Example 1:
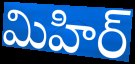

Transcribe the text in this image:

మిహిర్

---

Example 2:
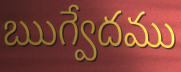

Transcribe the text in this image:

ఋగ్వేదము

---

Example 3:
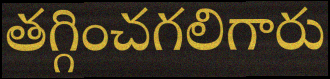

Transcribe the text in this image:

తగ్గించగలిగారు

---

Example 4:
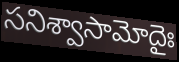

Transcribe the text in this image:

సనిశ్వాసామోదైః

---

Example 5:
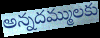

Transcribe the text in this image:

అన్నదమ్ములకు